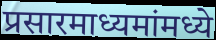
प्रसारमाध्यमांमध्ये